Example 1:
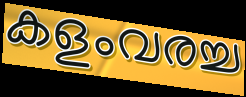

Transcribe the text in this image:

കളംവരച്ച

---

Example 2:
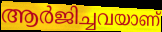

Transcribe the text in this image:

ആർജിച്ചവയാണ്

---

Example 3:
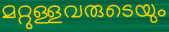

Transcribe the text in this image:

മറ്റുള്ളവരുടെയും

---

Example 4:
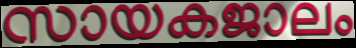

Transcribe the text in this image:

സായകജാലം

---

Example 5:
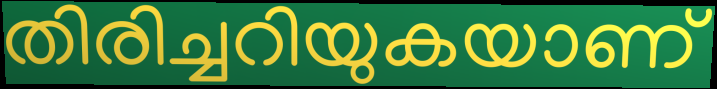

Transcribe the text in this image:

തിരിച്ചറിയുകയാണ്